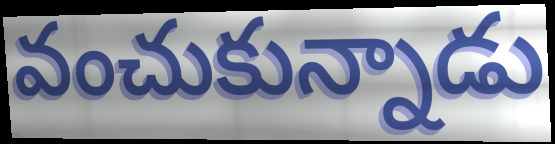
వంచుకున్నాడు